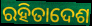
ରହିତାଦେଶ